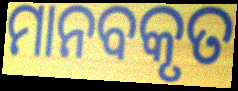
ମାନବକୃତ